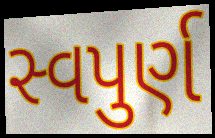
સ્વપુર્ણ